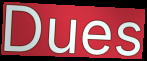
Dues